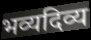
भव्यदिव्य